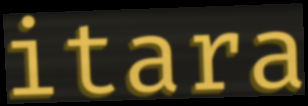
itara